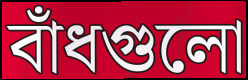
বাঁধগুলো